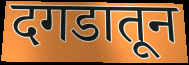
दगडातून